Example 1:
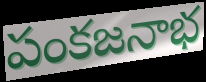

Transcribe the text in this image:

పంకజనాభ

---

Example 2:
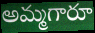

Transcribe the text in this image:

అమ్మగారూ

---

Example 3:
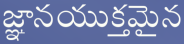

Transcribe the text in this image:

జ్ఞానయుక్తమైన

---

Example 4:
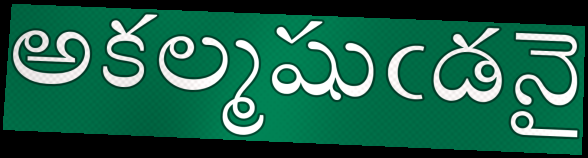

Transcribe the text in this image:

అకల్మషుఁడనై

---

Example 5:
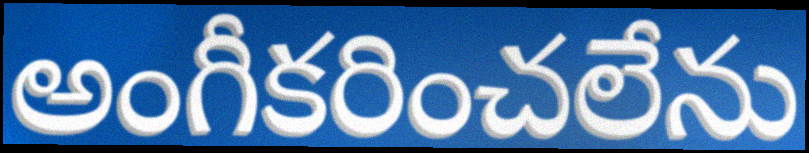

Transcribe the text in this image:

అంగీకరించలేను